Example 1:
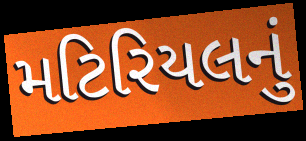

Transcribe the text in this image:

મટિરિયલનું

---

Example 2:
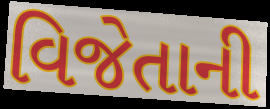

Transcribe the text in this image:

વિજેતાની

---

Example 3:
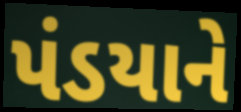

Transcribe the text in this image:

પંડયાને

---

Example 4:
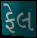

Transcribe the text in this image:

ફેલ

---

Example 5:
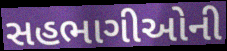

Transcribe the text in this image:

સહભાગીઓની